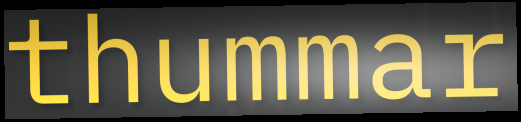
thummar